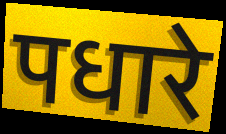
पधारे